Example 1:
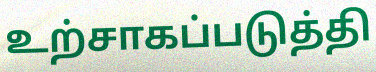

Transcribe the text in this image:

உற்சாகப்படுத்தி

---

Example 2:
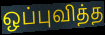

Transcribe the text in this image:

ஒப்புவித்த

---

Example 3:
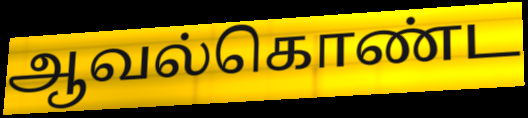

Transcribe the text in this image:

ஆவல்கொண்ட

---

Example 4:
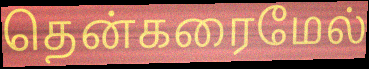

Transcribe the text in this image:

தென்கரைமேல்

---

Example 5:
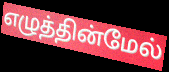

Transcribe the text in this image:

எழுத்தின்மேல்